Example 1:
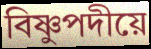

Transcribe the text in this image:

বিষ্ণুপদীয়ে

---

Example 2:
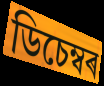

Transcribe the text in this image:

ডিচেম্বৰ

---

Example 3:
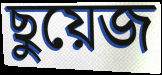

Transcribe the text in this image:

ছুয়েজ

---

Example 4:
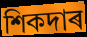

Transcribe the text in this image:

শিকদাৰ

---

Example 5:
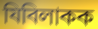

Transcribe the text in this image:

যিবিলাকক